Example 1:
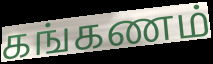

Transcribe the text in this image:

கங்கணம்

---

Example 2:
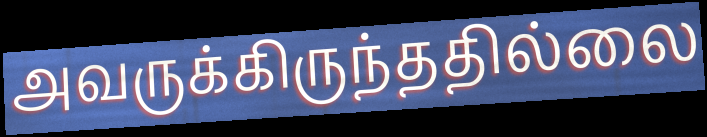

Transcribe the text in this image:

அவருக்கிருந்ததில்லை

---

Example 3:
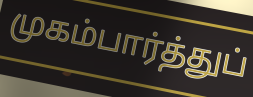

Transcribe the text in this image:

முகம்பார்த்துப்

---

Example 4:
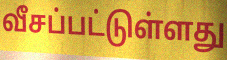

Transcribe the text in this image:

வீசப்பட்டுள்ளது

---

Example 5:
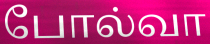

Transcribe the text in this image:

போல்வா